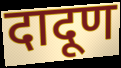
दादूण